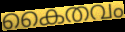
കൈതവം